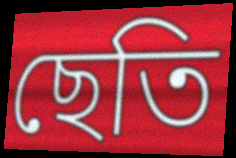
ছেতি